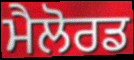
ਮੈਲੋਰਡ